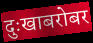
दुःखाबरोबर